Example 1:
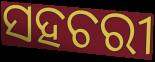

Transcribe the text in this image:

ସହଚରୀ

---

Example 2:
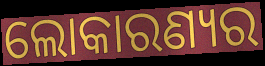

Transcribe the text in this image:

ଲୋକାରଣ୍ୟର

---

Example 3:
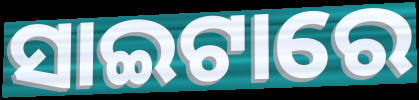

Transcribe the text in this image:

ସାଇଟାରେ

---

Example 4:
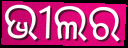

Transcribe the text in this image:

ଭୀଲର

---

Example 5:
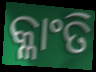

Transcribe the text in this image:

କ୍ଳାଂତି